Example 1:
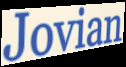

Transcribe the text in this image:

Jovian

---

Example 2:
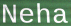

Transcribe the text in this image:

Neha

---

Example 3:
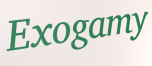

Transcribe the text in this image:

Exogamy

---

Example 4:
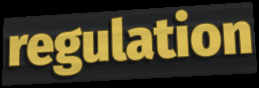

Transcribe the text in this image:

regulation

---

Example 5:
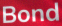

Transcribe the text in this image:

Bond